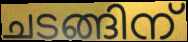
ചടങ്ങിന്